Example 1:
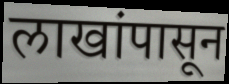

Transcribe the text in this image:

लाखांपासून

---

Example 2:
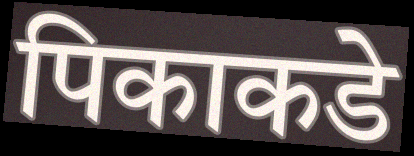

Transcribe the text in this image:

पिकाकडे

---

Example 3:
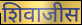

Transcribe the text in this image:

शिवाजीस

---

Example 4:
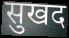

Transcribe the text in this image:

सुखद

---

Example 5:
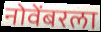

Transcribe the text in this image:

नोवेंबरला